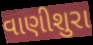
વાણીશુરા